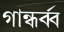
গান্ধর্ব্ব